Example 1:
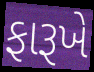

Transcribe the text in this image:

ફારૂખે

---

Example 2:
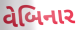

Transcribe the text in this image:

વેબિનાર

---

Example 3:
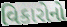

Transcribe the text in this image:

વિકારોનો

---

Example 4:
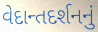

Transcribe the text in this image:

વેદાન્તદર્શનનું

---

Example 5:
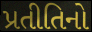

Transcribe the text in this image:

પ્રતીતિનો